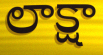
లాక్షా